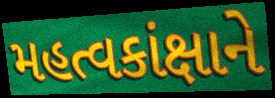
મહત્વકાંક્ષાને